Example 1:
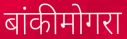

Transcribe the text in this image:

बांकीमोगरा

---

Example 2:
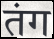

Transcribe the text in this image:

तंग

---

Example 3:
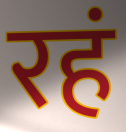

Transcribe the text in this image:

रहं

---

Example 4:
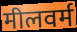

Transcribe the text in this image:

मीलवर्म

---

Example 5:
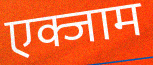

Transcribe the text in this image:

एक्जाम